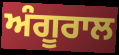
ਅੰਗੂਰਾਲ